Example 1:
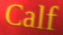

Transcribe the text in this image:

Calf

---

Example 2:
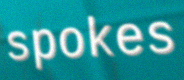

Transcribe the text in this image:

spokes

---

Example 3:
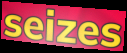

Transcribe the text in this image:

seizes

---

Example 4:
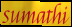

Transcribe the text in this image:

sumathi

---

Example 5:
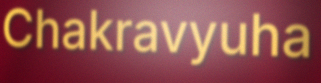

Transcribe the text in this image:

Chakravyuha